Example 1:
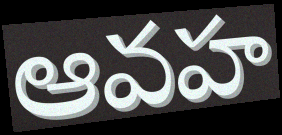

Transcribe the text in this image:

ఆవహ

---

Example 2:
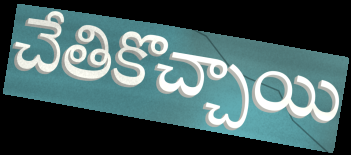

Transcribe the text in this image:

చేతికొచ్చాయి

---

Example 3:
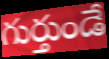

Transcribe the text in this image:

గుర్తుండే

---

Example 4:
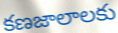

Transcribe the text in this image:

కణజాలాలకు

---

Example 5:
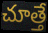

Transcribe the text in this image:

చూత్తే